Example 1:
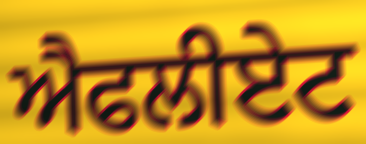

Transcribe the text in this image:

ਐਫਲੀਏਟ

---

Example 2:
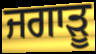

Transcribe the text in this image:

ਜਗਾੜੂ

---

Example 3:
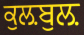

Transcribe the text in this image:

ਕੁਲ਼ਬੁਲ਼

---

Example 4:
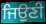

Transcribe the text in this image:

ਜਿਉਣੀ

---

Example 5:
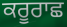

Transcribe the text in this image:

ਕਰੂਰਾਛ